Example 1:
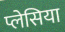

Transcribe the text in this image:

प्लेसिया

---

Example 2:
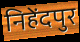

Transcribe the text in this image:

निहेंदपुर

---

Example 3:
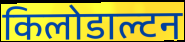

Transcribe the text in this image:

किलोडाल्टन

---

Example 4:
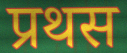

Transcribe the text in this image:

प्रथस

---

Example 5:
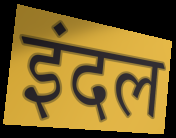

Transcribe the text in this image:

इंदल